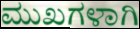
ಮುಖಗಳಾಗಿ